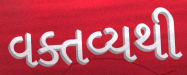
વક્તવ્યથી